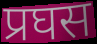
प्रघस